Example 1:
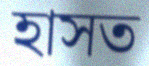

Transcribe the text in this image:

হাসত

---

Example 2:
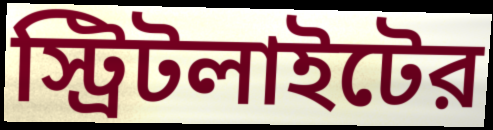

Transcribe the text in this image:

স্ট্রিটলাইটের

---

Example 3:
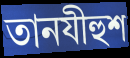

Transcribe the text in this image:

তানযীহুশ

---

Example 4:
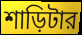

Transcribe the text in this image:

শাড়িটার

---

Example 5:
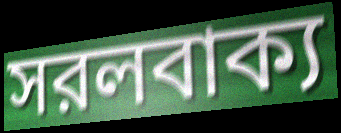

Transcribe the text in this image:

সরলবাক্য